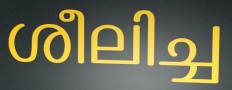
ശീലിച്ച